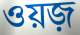
ওয়জ়